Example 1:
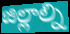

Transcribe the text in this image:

జిల్లాల్ని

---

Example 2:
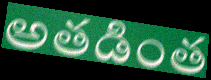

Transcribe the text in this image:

అతడింత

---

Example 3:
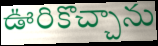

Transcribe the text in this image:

ఊరికొచ్చాను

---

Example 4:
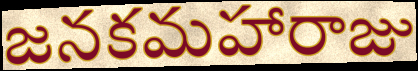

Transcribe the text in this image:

జనకమహారాజు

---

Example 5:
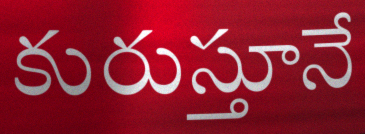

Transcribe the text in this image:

కురుస్తూనే